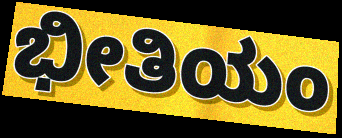
ಭೀತಿಯಂ